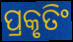
ପ୍ରକୃତିଂ